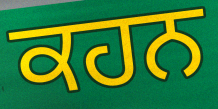
ਕਹਨ